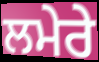
ਲਮੇਰੇ